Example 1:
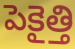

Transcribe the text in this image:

పెకైత్తి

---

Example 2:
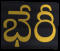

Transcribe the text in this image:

భేరీ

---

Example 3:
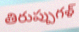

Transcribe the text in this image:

తిరుప్పుగళ్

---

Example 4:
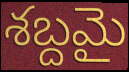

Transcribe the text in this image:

శబ్దమై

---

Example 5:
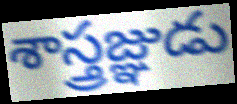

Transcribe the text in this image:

శాస్త్రజ్ఞుడు